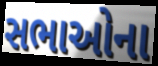
સભાઓના